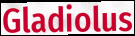
Gladiolus